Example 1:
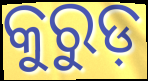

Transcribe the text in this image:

କୁରୁଡ଼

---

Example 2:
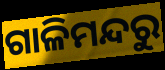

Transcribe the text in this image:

ଗାଳିମନ୍ଦରୁ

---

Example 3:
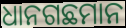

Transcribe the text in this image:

ଧାନଗଛମାନ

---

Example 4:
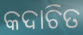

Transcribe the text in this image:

କଦାଚିତ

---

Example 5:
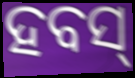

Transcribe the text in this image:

ହବସ୍